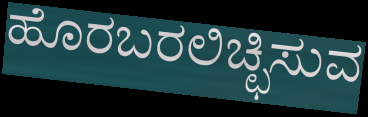
ಹೊರಬರಲಿಚ್ಛಿಸುವ